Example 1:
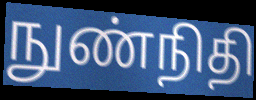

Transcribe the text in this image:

நுண்நிதி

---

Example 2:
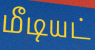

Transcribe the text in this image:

மீடியட்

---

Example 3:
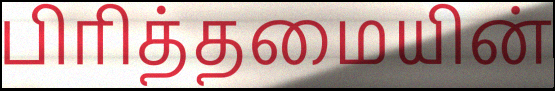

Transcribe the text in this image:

பிரித்தமையின்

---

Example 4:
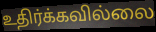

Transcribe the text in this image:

உதிர்க்கவில்லை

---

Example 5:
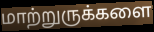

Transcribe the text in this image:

மாற்றுருக்களை